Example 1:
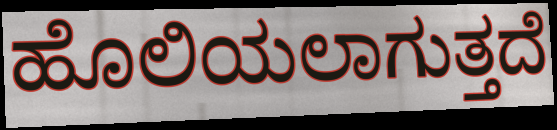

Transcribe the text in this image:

ಹೊಲಿಯಲಾಗುತ್ತದೆ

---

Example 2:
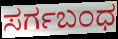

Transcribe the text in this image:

ಸರ್ಗಬಂಧ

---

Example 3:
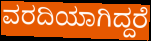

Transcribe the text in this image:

ವರದಿಯಾಗಿದ್ದರೆ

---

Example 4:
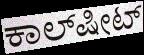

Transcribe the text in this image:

ಕಾಲ್‌ಷೀಟ್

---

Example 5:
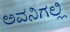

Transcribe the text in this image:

ಅವನಿಗಲ್ಲಿ